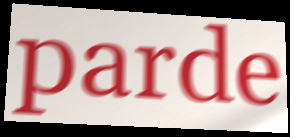
parde